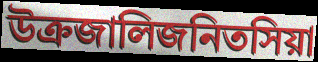
উক্রজালিজনিতসিয়া